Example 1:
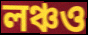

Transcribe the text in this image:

লঞ্চও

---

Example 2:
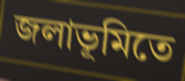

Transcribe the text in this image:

জলাভূমিতে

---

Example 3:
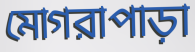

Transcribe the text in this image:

মোগরাপাড়া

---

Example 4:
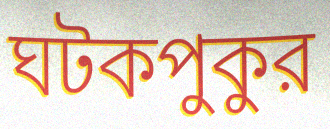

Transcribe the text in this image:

ঘটকপুকুর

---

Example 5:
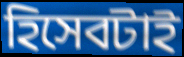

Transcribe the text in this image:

হিসেবটাই